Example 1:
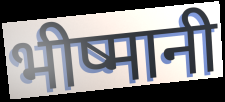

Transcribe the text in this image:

भीष्मानी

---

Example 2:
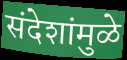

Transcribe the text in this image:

संदेशांमुळे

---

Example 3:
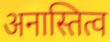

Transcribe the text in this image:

अनास्तित्व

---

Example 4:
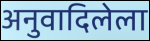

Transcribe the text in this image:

अनुवादिलेला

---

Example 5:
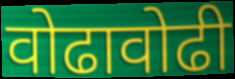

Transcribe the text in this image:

वोढावोढी